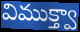
విముక్త్వా